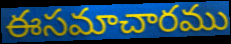
ఈసమాచారము